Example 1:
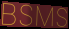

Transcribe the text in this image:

BSMS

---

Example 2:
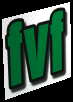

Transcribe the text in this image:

fvf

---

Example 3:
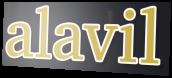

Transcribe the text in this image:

alavil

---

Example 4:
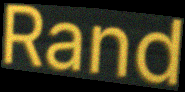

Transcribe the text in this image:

Rand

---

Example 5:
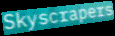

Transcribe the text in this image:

Skyscrapers